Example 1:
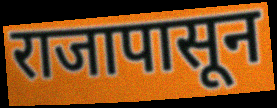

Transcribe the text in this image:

राजापासून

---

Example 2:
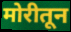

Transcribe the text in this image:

मोरीतून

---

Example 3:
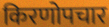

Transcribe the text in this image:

किरणोपचार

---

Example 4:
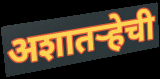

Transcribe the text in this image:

अशातऱ्हेची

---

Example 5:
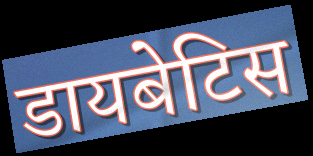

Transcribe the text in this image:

डायबेटिस